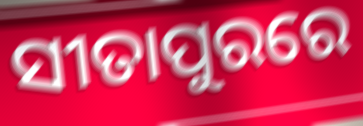
ସୀତାପୁରରେ